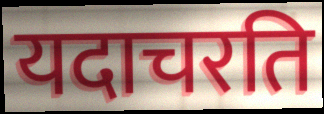
यदाचरति